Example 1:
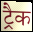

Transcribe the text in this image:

ट्रैक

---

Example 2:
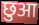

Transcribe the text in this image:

छुआ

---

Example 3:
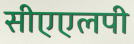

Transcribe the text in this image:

सीएएलपी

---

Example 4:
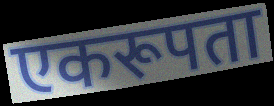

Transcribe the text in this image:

एकरूपता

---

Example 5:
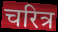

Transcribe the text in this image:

चरित्र